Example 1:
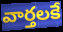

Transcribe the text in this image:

వార్తలకే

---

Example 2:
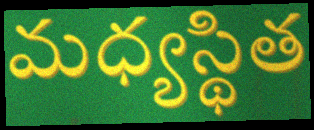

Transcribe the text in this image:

మధ్యస్థిత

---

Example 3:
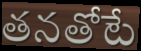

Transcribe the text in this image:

తనతోటే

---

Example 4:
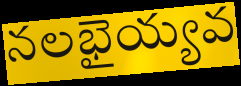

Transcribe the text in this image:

నలభైయ్యవ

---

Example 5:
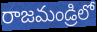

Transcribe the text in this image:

రాజమండ్రిలో